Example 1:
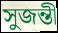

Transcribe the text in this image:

সুজন্তী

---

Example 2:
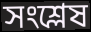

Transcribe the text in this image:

সংশ্লেষ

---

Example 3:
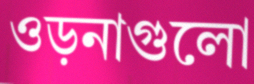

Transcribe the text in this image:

ওড়নাগুলো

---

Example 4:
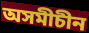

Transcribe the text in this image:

অসমীচীন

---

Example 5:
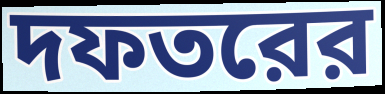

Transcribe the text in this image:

দফতরের